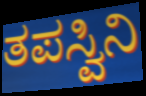
ತಪಸ್ವಿನಿ